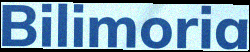
Bilimoria